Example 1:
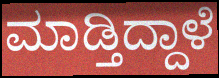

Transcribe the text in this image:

ಮಾಡ್ತಿದ್ದಾಳೆ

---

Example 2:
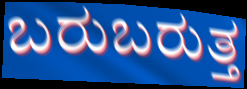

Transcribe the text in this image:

ಬರುಬರುತ್ತ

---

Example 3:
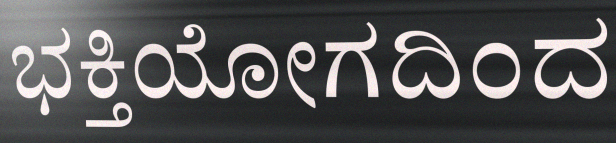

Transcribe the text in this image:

ಭಕ್ತಿಯೋಗದಿಂದ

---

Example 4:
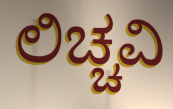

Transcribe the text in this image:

ಲಿಚ್ಚವಿ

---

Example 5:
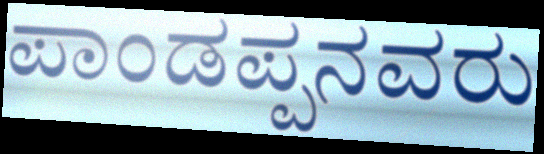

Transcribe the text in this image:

ಪಾಂಡಪ್ಪನವರು